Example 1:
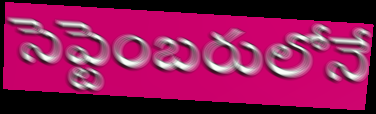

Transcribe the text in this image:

సెప్టెంబరులోనే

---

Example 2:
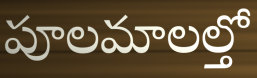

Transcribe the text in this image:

పూలమాలల్తో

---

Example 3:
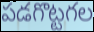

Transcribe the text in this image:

పడగొట్టగల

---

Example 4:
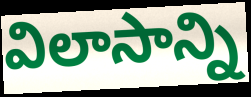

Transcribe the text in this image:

విలాసాన్ని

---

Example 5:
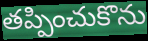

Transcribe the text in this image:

తప్పించుకొను